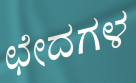
ಛೇದಗಳ